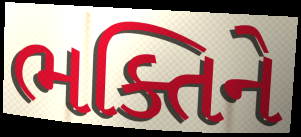
ભક્તિને